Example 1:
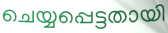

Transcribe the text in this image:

ചെയ്യപ്പെട്ടതായി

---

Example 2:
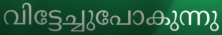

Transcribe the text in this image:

വിട്ടേച്ചുപോകുന്നു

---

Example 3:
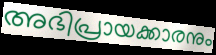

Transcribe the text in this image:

അഭിപ്രായക്കാരനും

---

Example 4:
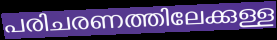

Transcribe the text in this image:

പരിചരണത്തിലേക്കുള്ള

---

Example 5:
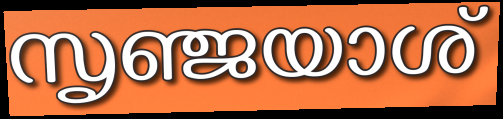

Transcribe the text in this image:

സൃഞ്ജയാശ്